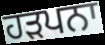
ਹੜਪਨਾ